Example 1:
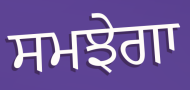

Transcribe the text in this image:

ਸਮਝੇਗਾ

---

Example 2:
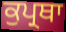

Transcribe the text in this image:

ਕੁਪ੍ਰਥਾ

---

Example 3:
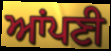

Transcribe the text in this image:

ਆਂਪਣੀ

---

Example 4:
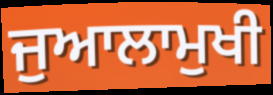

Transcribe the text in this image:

ਜੁਆਲਾਮੁਖੀ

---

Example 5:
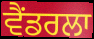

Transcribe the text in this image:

ਵੈਂਡਰਲਾ